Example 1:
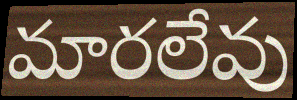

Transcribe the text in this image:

మారలేవు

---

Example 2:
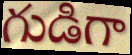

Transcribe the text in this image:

గుడిగా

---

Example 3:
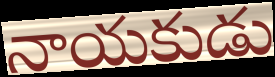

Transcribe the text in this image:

నాయకుడు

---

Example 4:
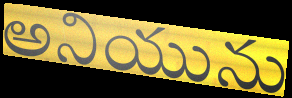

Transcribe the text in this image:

అనియును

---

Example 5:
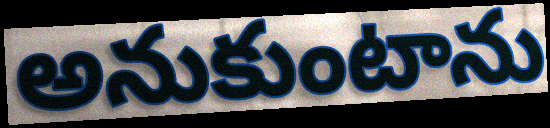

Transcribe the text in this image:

అనుకుంటాను